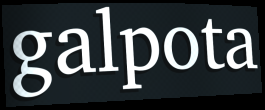
galpota